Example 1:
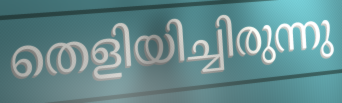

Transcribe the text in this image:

തെളിയിച്ചിരുന്നു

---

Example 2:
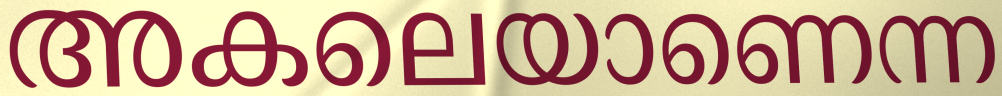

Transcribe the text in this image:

അകലെയാണെന്ന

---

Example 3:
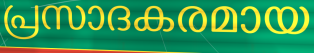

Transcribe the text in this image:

പ്രസാദകരമായ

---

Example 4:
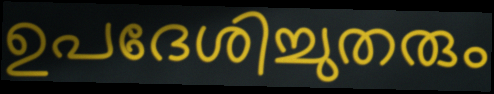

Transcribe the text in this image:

ഉപദേശിച്ചുതരും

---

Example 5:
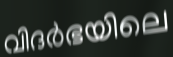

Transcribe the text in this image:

വിദർഭയിലെ